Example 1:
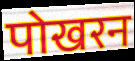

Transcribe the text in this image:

पोखरन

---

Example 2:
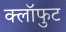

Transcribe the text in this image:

क्लॉफुट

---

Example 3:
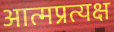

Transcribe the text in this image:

आत्मप्रत्यक्ष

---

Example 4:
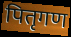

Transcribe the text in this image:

पितृगण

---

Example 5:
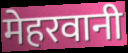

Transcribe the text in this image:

मेहरवानी